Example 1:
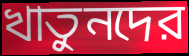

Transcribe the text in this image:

খাতুনদের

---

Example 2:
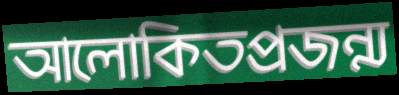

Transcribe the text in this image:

আলোকিতপ্রজন্ম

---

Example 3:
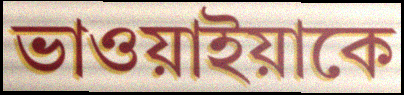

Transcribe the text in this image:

ভাওয়াইয়াকে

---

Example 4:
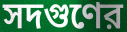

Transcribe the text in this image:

সদগুণের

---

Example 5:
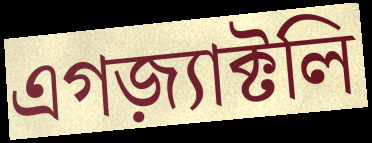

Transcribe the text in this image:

এগজ়্যাক্টলি